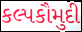
કલ્પકૌમુદી